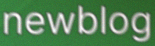
newblog